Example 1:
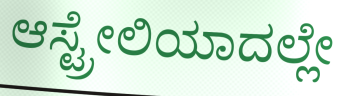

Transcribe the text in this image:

ಆಸ್ಟ್ರೇಲಿಯಾದಲ್ಲೇ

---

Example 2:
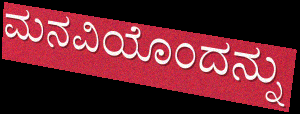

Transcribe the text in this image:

ಮನವಿಯೊಂದನ್ನು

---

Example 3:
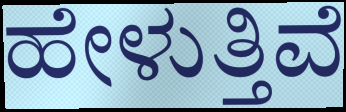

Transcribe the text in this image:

ಹೇಳುತ್ತಿವೆ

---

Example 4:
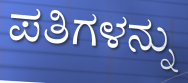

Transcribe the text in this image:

ಪತಿಗಳನ್ನು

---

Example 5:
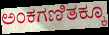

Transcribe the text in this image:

ಅಂಕಗಣಿತಕ್ಕೂ